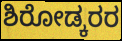
ಶಿರೋಡ್ಕರರ